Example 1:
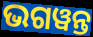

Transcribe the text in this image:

ଭଗୱନ୍ତ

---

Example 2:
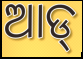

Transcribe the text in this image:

ଆଡ୍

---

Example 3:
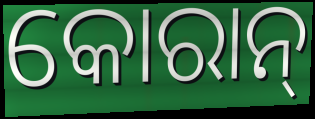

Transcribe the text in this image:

କୋରାନ୍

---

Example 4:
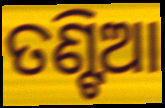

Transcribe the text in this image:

ତଣ୍ଟିଆ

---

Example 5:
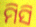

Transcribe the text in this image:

ମିସି